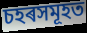
চহৰসমূহত